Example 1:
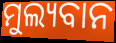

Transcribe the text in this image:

ମୁଲ୍ୟବାନ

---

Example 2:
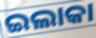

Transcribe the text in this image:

ଇଲାକା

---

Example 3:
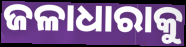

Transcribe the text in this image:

ଜଳାଧାରାକୁ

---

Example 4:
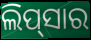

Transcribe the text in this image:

ଲିପ୍‌ସାର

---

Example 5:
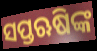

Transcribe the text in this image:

ସପ୍ତଋଷିଙ୍କ